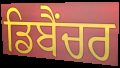
ਡਿਬੈਂਚਰ